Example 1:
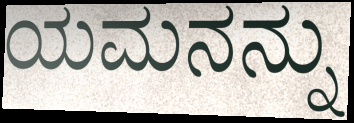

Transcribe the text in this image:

ಯಮನನ್ನು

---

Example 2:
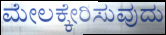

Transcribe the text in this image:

ಮೇಲಕ್ಕೇರಿಸುವುದು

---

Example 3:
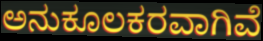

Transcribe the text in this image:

ಅನುಕೂಲಕರವಾಗಿವೆ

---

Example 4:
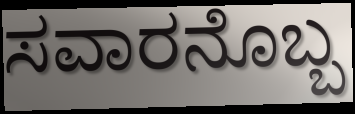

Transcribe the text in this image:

ಸವಾರನೊಬ್ಬ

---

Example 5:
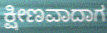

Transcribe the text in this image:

ಕ್ಷೀಣವಾದಾಗ